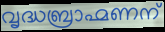
വൃദ്ധബ്രാഹ്മണന്